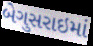
બેગુસરાઇમાં